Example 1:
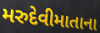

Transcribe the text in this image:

મરુદેવીમાતાના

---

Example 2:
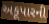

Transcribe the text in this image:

અકૂપારની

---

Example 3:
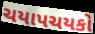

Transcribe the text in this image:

ચયાપચયકો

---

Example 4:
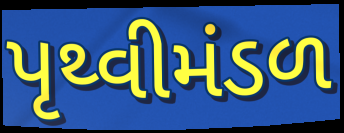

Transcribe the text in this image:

પૃથ્વીમંડળ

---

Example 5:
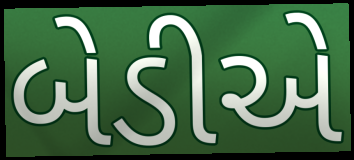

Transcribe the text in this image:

બેડીએ